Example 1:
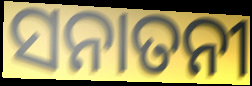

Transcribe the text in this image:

ସନାତନୀ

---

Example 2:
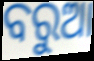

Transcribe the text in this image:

ବରୁଆ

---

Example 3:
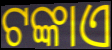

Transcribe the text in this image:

ଟଙ୍କାଏ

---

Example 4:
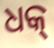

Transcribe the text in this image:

ଧକ୍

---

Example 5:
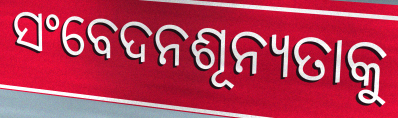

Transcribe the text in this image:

ସଂବେଦନଶୂନ୍ୟତାକୁ